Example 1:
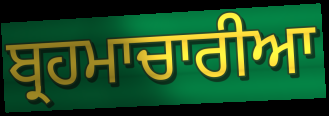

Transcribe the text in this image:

ਬ੍ਰਹਮਾਚਾਰੀਆ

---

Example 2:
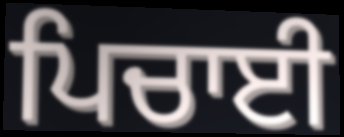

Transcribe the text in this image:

ਪਿਚਾਈ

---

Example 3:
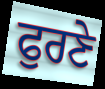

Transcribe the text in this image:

ਫੁਰਣੇ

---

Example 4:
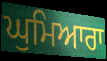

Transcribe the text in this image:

ਘੁਮਿਆਰਾ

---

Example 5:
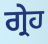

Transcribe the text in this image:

ਗ੍ਰੇਹ